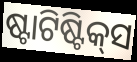
ଷ୍ଟାଟିଷ୍ଟିକ୍‍ସ